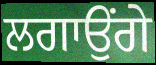
ਲਗਾਉਂਗੇ